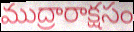
ముద్రారాక్షసం